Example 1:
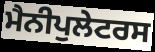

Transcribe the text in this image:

ਮੈਨੀਪੁਲੇਟਰਸ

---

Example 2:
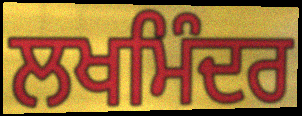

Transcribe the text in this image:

ਲਖਮਿੰਦਰ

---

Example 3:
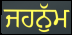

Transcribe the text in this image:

ਜਹਨੁੱਮ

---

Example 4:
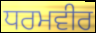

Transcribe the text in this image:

ਧਰਮਵੀਰ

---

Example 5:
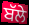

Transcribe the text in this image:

ਬੱਲੇ